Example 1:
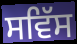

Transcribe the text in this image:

ਸਵਿੱਸ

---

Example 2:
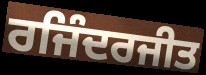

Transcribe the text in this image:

ਰਜਿੰਦਰਜੀਤ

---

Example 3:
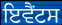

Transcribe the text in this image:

ਇਵੈਂਟਸ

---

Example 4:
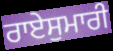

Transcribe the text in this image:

ਰਾਏਸੁਮਾਰੀ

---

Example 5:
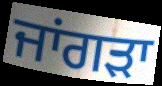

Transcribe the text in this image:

ਜਾਂਗੜਾ